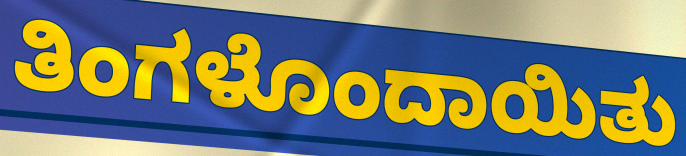
ತಿಂಗಳೊಂದಾಯಿತು